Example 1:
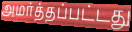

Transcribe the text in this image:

அமர்த்தப்பட்டது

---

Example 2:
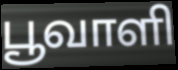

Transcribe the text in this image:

பூவாளி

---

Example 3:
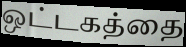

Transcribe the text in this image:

ஒட்டகத்தை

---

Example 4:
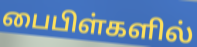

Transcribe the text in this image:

பைபிள்களில்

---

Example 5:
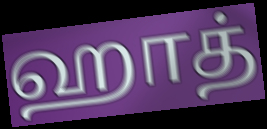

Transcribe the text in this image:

ஹாத்